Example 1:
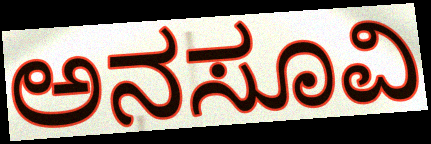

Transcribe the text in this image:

ಅನಸೂವಿ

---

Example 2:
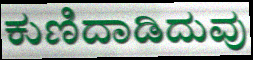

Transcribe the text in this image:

ಕುಣಿದಾಡಿದುವು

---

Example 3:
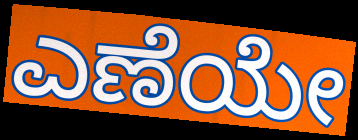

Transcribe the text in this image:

ಎಣೆಯೇ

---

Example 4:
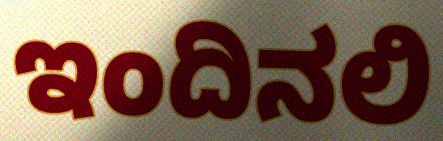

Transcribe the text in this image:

ಇಂದಿನಲಿ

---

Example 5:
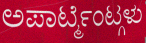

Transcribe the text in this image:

ಅಪಾರ್ಟ್ಮೆಂಟ್ಗಳು